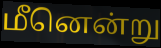
மீனென்று